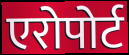
एरोपोर्ट